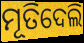
ମୂତିଦେଲି